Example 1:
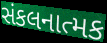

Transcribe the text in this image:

સંકલનાત્મક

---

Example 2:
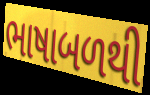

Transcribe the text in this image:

ભાષાબળથી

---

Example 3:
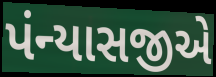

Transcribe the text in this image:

પંન્યાસજીએ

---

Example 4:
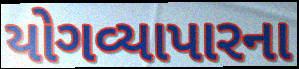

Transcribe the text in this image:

યોગવ્યાપારના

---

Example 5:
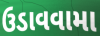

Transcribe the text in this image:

ઉડાવવામા